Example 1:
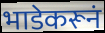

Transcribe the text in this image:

भाडेकरूनं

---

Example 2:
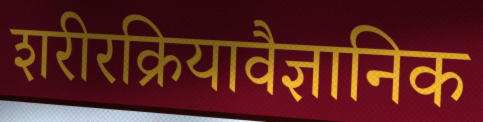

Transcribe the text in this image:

शरीरक्रियावैज्ञानिक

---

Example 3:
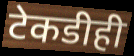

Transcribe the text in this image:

टेकडीही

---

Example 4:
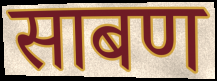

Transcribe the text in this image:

साबण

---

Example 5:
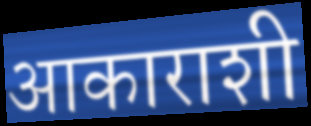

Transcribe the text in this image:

आकाराशी